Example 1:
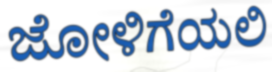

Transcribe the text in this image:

ಜೋಳಿಗೆಯಲಿ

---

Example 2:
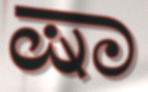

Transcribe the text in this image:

ಷಾ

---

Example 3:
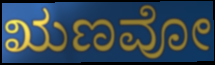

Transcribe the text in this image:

ಋಣವೋ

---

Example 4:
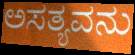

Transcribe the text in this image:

ಅಸತ್ಯವನು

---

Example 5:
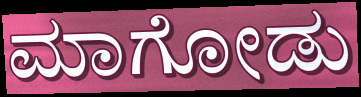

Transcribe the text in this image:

ಮಾಗೋಡು